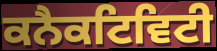
ਕਨੈਕਟਿਵਿਟੀ